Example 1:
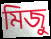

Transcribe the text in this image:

মিজু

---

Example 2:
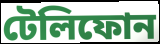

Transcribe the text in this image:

টেলিফোন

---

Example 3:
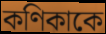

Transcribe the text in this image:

কণিকাকে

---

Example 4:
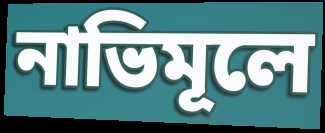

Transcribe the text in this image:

নাভিমূলে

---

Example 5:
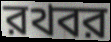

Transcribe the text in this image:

রথবর